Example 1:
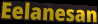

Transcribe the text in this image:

Eelanesan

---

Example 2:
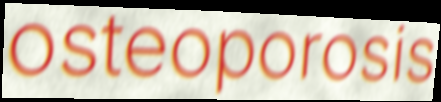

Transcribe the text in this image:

osteoporosis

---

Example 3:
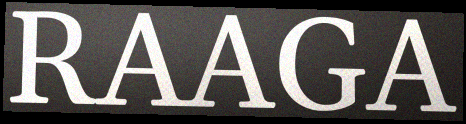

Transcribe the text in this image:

RAAGA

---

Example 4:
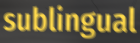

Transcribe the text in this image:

sublingual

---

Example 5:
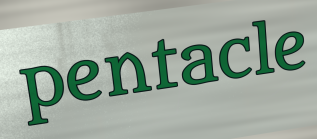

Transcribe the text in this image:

pentacle